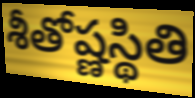
శీతోష్ణస్థితి